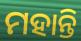
ମହାନ୍ତି